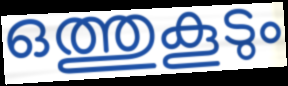
ഒത്തുകൂടും